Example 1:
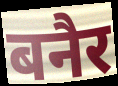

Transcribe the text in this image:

बनैर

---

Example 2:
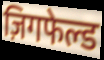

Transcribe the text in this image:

ज़िगफेल्ड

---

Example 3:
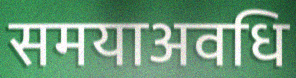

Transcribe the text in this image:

समयाअवधि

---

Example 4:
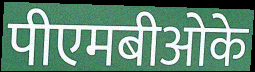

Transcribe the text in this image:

पीएमबीओके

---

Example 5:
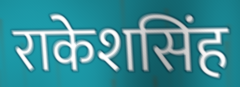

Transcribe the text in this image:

राकेशसिंह